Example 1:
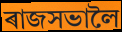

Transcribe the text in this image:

ৰাজসভালৈ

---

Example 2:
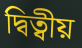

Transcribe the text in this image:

দ্বিত্বীয়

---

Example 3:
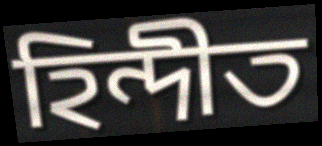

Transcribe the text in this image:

হিন্দীত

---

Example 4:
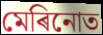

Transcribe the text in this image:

মেৰিনোত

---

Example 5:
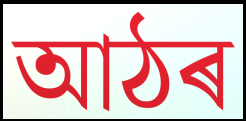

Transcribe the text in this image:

আঠৰ